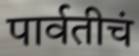
पार्वतीचं